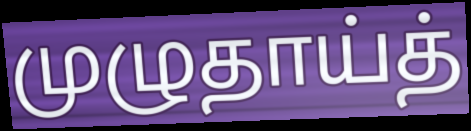
முழுதாய்த்